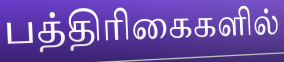
பத்திரிகைகளில்